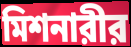
মিশনারীর